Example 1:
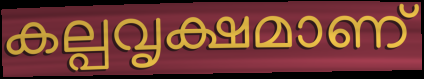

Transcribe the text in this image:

കല്പവൃക്ഷമാണ്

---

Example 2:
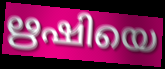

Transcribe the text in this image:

ഋഷിയെ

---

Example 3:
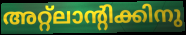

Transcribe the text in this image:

അറ്റ്ലാന്റിക്കിനു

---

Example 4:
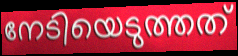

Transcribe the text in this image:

നേടിയെടുത്തത്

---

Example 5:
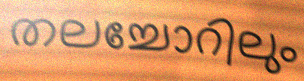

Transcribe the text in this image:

തലച്ചോറിലും